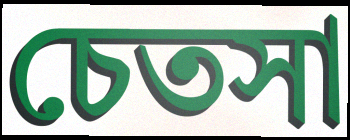
চেতসা